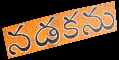
నడకను